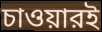
চাওয়ারই